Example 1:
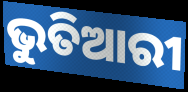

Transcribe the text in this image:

ଭୁତିଆରୀ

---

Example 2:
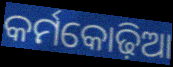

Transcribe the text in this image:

କର୍ମକୋଢ଼ିଆ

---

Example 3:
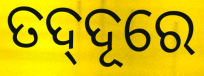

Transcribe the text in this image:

ତଦ୍‍ଦୂରେ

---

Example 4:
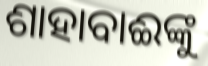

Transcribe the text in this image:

ଶାହାବାଈଙ୍କୁ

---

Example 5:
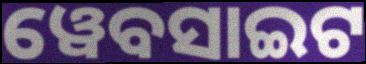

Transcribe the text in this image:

ୱେବସାଇଟ